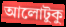
আলোটুকু